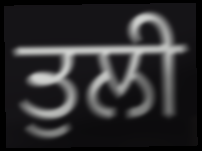
ਤੁਲੀ